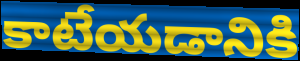
కాటేయడానికి